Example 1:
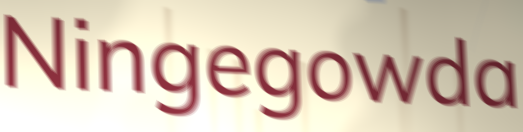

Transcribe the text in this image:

Ningegowda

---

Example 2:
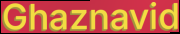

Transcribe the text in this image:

Ghaznavid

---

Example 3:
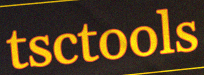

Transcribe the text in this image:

tsctools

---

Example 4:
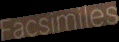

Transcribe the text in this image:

Facsimiles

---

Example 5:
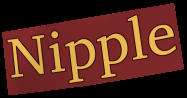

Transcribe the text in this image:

Nipple